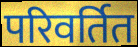
परिवर्तित